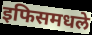
इफिसमधले